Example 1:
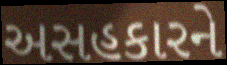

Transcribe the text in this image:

અસહકારને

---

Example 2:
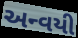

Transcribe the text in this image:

અન્વયી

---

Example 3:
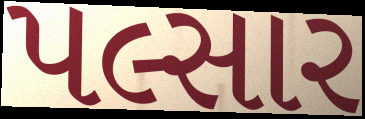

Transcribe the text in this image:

પલ્સાર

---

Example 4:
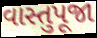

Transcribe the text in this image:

વાસ્તુપૂજા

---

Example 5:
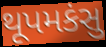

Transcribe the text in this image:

થૂપમકંસુ